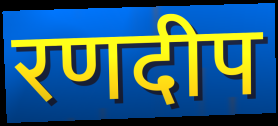
रणदीप